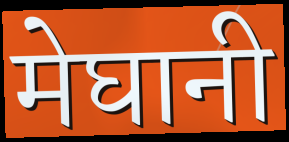
मेघानी